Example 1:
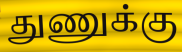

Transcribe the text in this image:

துணுக்கு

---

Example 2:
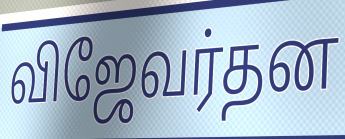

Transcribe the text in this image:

விஜேவர்தன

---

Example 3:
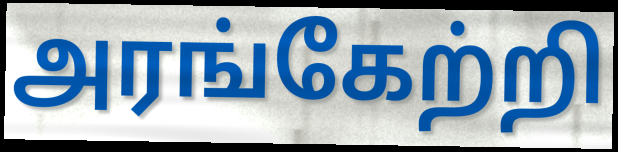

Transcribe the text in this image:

அரங்கேற்றி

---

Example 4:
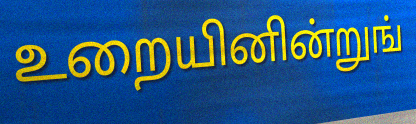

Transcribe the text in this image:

உறையினின்றுங்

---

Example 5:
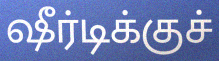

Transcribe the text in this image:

ஷீர்டிக்குச்